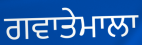
ਗਵਾਤੇਮਾਲਾ